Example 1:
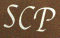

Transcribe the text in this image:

SCP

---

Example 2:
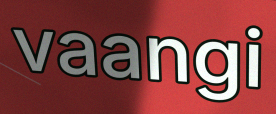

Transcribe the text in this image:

vaangi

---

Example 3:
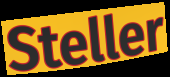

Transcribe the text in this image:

Steller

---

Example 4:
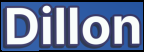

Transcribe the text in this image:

Dillon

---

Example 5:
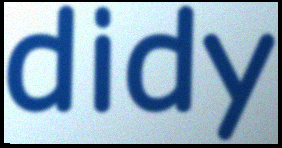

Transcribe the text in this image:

didy